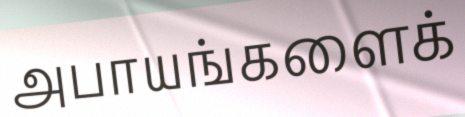
அபாயங்களைக்